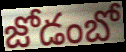
జోడంబో